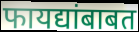
फायद्यांबाबत